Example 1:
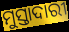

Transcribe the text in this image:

ମୁସ୍ତାଦାରୀ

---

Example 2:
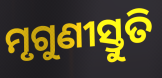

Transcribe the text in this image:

ମୃଗୁଣୀସ୍ତୁତି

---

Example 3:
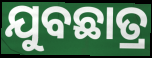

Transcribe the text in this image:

ଯୁବଛାତ୍ର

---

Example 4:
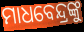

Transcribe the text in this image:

ମାଧବେନ୍ଦ୍ରଙ୍କୁ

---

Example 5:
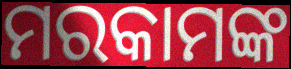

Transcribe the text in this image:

ମରକାମଙ୍କ